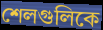
শেলগুলিকে